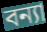
বন্যা